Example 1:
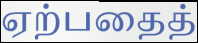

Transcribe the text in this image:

ஏற்பதைத்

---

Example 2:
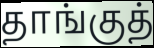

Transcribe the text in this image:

தாங்குத்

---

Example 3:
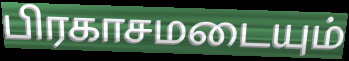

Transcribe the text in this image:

பிரகாசமடையும்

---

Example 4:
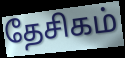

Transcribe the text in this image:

தேசிகம்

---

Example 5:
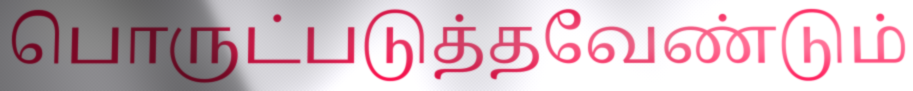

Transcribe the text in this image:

பொருட்படுத்தவேண்டும்